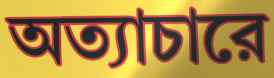
অত্যাচারে